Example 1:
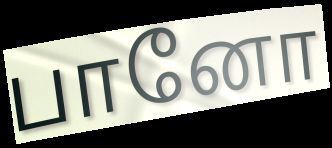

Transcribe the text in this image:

பானோ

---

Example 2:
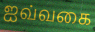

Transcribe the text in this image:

ஐவ்வகை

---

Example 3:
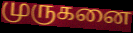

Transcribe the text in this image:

முருகனை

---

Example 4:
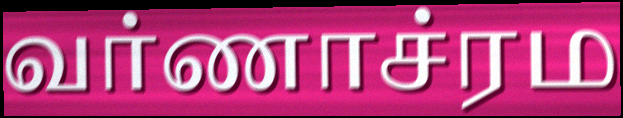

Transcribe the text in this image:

வர்ணாச்ரம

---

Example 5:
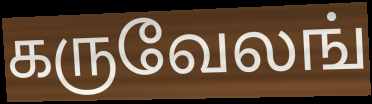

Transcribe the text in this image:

கருவேலங்